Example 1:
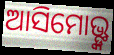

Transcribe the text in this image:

ଆସିମୋଭ୍ଙ୍କ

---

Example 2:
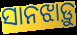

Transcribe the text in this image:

ସାନଝାଡ଼ୁ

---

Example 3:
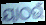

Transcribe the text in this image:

ୟାଠଉଁ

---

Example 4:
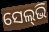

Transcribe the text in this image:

ସେଲ୍‌ଭି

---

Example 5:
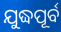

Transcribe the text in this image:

ଯୁଦ୍ଧପୂର୍ବ